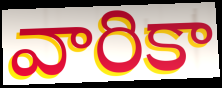
వారికా